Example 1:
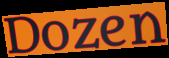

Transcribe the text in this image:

Dozen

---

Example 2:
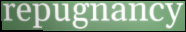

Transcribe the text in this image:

repugnancy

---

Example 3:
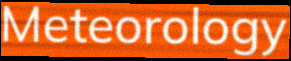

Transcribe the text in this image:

Meteorology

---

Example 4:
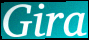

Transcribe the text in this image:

Gira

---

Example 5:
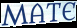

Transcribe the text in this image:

MATE